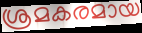
ശ്രമകരമായ